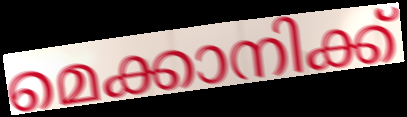
മെക്കാനിക്ക്